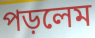
পড়লেম